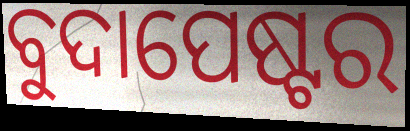
ବୁଦାପେଷ୍ଟର